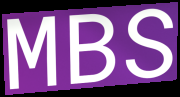
MBS